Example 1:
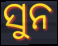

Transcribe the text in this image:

ସୁନ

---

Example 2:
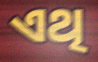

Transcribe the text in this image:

ଏଥି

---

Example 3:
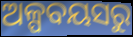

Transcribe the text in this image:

ଅଳ୍ପବୟସରୁ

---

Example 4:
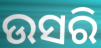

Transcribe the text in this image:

ଉସରି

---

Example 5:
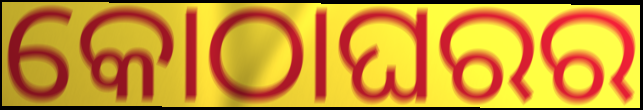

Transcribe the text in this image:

କୋଠାଘରର